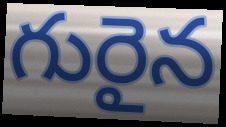
గురైన